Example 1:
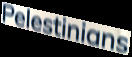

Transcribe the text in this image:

Pelestinians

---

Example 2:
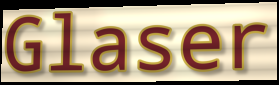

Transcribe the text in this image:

Glaser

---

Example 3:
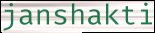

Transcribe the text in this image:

janshakti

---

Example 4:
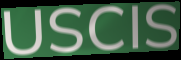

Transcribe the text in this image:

USCIS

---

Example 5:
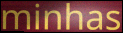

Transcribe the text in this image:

minhas